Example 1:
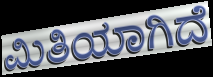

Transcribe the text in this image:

ಮಿತಿಯಾಗಿದೆ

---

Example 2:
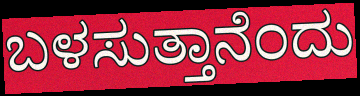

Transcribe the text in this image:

ಬಳಸುತ್ತಾನೆಂದು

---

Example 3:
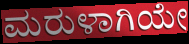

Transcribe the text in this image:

ಮರುಳಾಗಿಯೇ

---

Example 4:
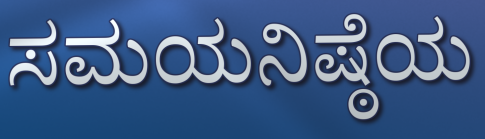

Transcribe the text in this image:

ಸಮಯನಿಷ್ಠೆಯ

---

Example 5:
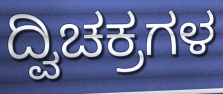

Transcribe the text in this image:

ದ್ವಿಚಕ್ರಗಳ